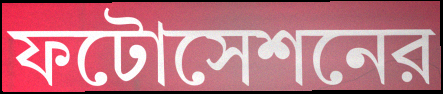
ফটোসেশনের